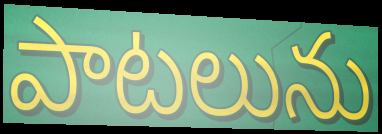
పాటలును